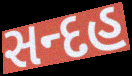
સન્દહ